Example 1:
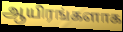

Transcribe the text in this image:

ஆயிரங்களாக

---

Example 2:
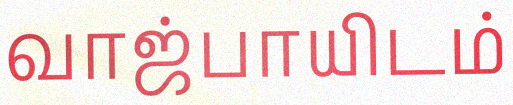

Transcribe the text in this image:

வாஜ்பாயிடம்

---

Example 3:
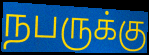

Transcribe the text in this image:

நபருக்கு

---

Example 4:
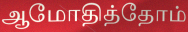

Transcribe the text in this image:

ஆமோதித்தோம்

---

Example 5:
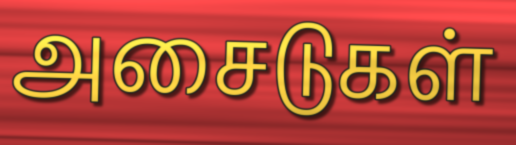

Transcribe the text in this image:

அசைடுகள்